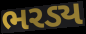
ભરડ્ય